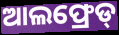
ଆଲଫ୍ରେଡ୍